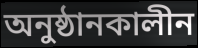
অনুষ্ঠানকালীন